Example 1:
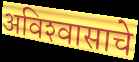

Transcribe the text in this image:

अविश्वासाचे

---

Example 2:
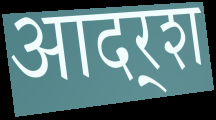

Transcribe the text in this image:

आदर्श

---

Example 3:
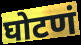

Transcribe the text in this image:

घोटणं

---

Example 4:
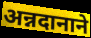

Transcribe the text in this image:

अन्नदानाने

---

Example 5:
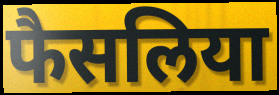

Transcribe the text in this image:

फैसलिया